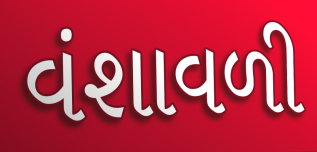
વંશાવળી